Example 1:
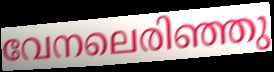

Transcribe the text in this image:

വേനലെരിഞ്ഞു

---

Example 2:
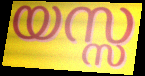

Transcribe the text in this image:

യസ്സ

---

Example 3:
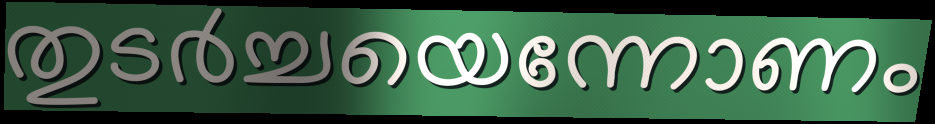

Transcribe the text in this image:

തുടർച്ചയെന്നോണം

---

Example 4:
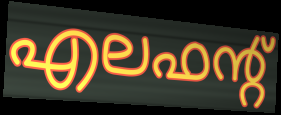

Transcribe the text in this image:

എലഫന്റ്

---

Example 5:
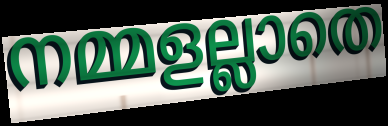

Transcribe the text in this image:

നമ്മളല്ലാതെ